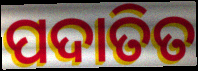
ପଦାତିତ